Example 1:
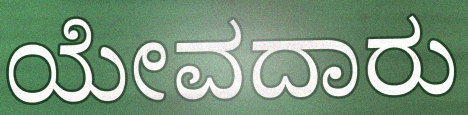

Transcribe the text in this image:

ಯೇವದಾರು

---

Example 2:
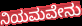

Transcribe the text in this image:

ನಿಯಮವೇನು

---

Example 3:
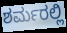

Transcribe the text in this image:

ಶರ್ಮರಲ್ಲಿ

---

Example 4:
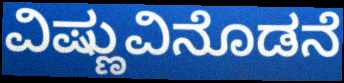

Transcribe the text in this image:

ವಿಷ್ಣುವಿನೊಡನೆ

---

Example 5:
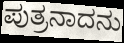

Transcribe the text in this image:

ಪುತ್ರನಾದನು